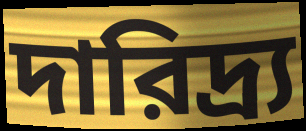
দারিদ্র্য